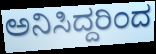
ಅನಿಸಿದ್ದರಿಂದ